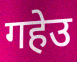
गहेउ